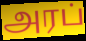
அரப்